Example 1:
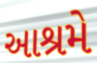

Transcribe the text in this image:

આશ્રમે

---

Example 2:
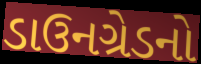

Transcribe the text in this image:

ડાઉનગ્રેડનો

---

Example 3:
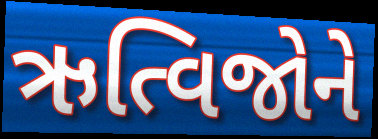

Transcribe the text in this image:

ઋત્વિજોને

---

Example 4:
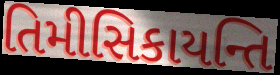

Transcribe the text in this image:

તિમીસિકાયન્તિ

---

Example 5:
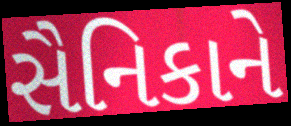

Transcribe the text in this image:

સૈનિકાને